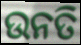
ଉନତି